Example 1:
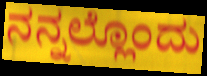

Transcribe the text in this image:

ನನ್ನಲ್ಲೊಂದು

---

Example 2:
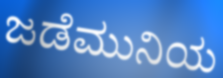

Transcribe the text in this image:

ಜಡೆಮುನಿಯ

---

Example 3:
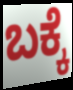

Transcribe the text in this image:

ಬಕ್ಕೆ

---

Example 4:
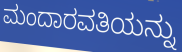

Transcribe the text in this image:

ಮಂದಾರವತಿಯನ್ನು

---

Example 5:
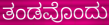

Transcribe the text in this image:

ತಂಡವೊಂದು